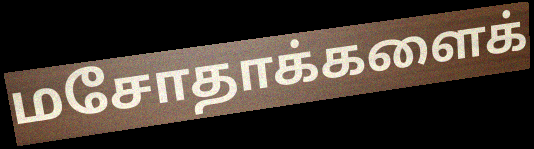
மசோதாக்களைக்